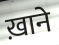
ख़ाने